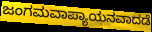
ಜಂಗಮವಾಪ್ಯಾಯನವಾದಡೆ